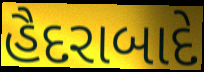
હૈદરાબાદે